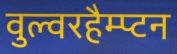
वुल्वरहैम्प्टन